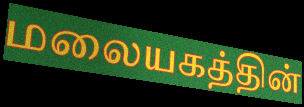
மலையகத்தின்